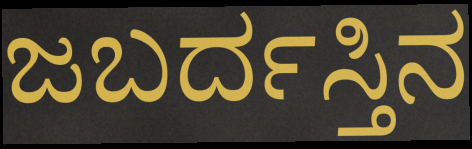
ಜಬರ್ದಸ್ತಿನ